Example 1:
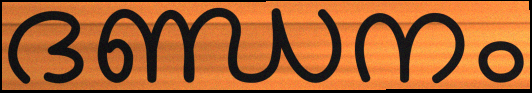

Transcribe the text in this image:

ദണ്ഡനം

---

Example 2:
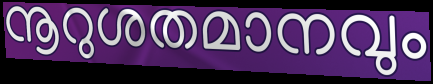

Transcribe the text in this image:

നൂറുശതമാനവും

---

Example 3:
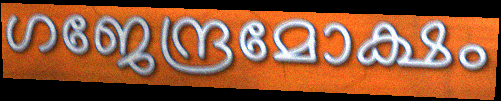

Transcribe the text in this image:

ഗജേന്ദ്രമോക്ഷം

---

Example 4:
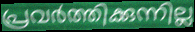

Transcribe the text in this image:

പ്രവർത്തിക്കുന്നില്ല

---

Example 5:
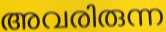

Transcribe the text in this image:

അവരിരുന്ന